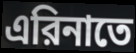
এরিনাতে